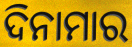
ଦିନାମାର